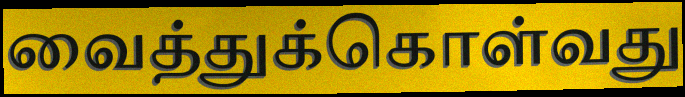
வைத்துக்கொள்வது